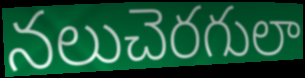
నలుచెరగులా